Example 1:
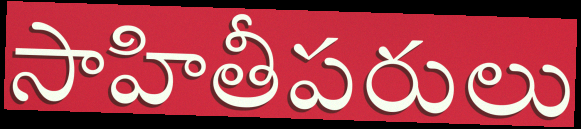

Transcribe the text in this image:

సాహితీపరులు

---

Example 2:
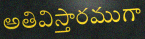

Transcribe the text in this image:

అతివిస్తారముగా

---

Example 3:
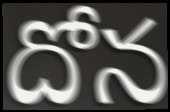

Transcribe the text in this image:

దోన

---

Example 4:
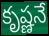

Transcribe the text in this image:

కృష్ణనే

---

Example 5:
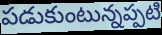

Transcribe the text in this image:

పడుకుంటున్నప్పటి